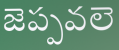
జెప్పవలె